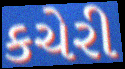
કચેરી